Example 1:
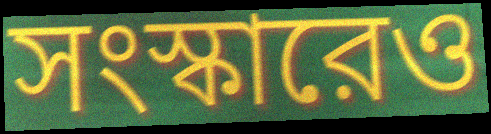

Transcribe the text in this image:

সংস্কারেও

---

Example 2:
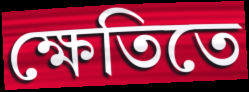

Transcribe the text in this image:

ক্ষেতিতে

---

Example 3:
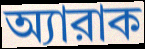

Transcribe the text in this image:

অ্যারাক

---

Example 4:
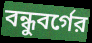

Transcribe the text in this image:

বন্ধুবর্গের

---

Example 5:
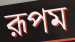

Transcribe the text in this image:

রূপম